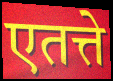
एतत्ते